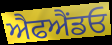
ਐਫਐਂਡਓ